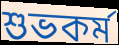
শুভকর্ম